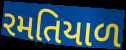
રમતિયાળ